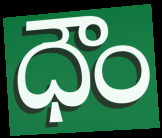
ధౌం